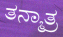
ತನ್ಮಾತ್ರ